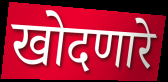
खोदणारे